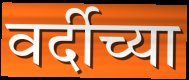
वर्दीच्या